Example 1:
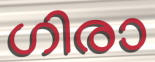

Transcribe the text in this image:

ഗിരാ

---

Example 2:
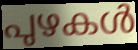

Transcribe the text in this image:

പുഴകൾ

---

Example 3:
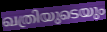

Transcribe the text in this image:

ഖത്രിയുടെയും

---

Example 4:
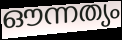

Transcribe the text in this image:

ഔന്നത്യം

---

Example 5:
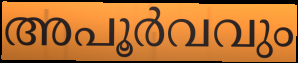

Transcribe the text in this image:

അപൂർവവും